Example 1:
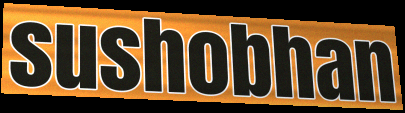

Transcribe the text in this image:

sushobhan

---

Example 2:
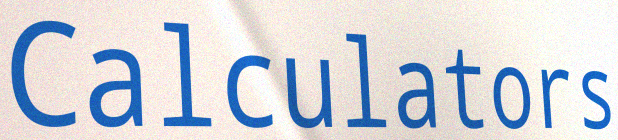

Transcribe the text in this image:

Calculators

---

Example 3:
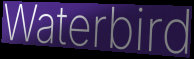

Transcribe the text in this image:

Waterbird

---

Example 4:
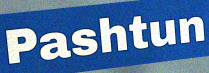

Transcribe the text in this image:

Pashtun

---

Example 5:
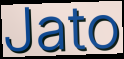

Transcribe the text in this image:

Jato